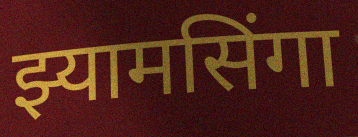
झ्यामसिंगा